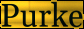
Purke